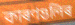
কাৰণগুলিৰ